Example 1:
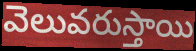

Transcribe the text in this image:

వెలువరుస్తాయి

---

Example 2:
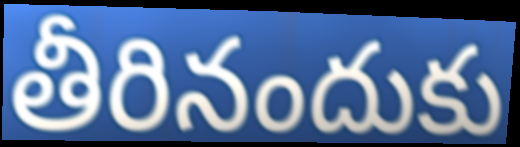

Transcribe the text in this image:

తీరినందుకు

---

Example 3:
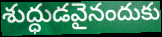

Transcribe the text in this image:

శుద్ధుడవైనందుకు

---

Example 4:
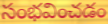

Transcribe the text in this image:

సంభవించడం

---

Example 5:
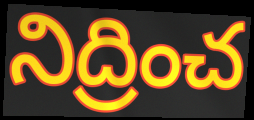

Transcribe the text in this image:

నిద్రించ